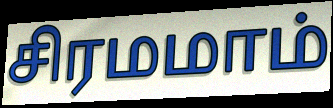
சிரமமாம்